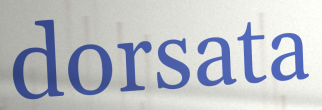
dorsata